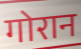
गोरान